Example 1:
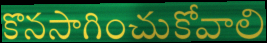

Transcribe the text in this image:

కొనసాగించుకోవాలి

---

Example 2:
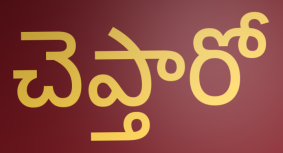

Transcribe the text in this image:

చెప్తారో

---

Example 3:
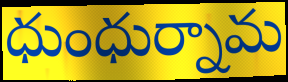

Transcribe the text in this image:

ధుంధుర్నామ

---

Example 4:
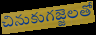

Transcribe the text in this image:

చినుకుగజ్జెలతో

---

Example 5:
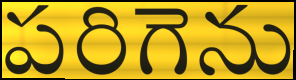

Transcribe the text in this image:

పరిగెను